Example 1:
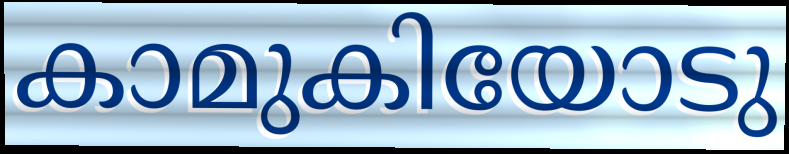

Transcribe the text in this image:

കാമുകിയോടു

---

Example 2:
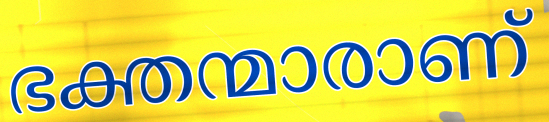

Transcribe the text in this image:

ഭക്തന്മാരാണ്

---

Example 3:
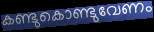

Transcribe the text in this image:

കണ്ടുകൊണ്ടുവേണം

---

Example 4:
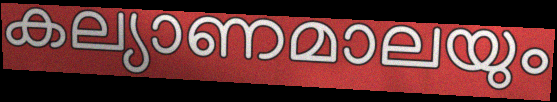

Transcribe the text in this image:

കല്യാണമാലയും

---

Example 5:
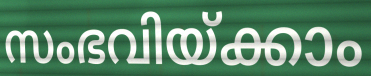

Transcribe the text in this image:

സംഭവിയ്ക്കാം